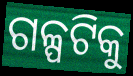
ଗଳ୍ପଟିକୁ